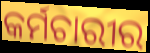
କର୍ମଚାରୀର